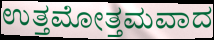
ಉತ್ತಮೋತ್ತಮವಾದ